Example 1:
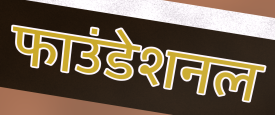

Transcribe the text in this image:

फाउंडेशनल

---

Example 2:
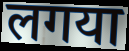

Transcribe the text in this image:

लगया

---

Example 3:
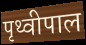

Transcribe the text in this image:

पृथ्वीपाल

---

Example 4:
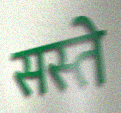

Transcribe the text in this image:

सस्‍ते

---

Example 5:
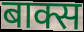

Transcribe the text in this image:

बाक्स